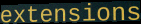
extensions